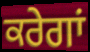
ਕਰੇਗਾਂ